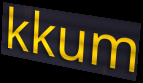
kkum